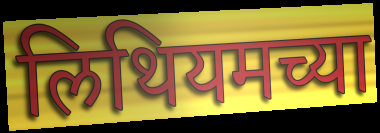
लिथियमच्या